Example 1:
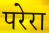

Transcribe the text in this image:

परेरा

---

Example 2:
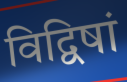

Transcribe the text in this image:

विद्विषां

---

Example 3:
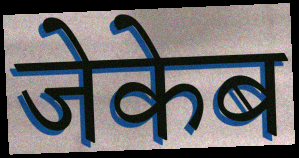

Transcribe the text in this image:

जेकेब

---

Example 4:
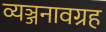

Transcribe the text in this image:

व्यञ्जनावग्रह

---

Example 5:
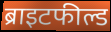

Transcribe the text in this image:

ब्राइटफील्ड